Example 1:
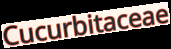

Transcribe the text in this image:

Cucurbitaceae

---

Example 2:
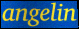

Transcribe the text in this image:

angelin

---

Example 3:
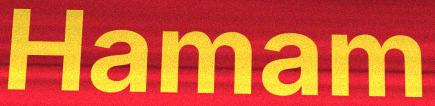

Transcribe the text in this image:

Hamam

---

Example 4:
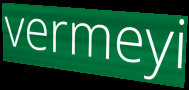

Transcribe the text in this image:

vermeyi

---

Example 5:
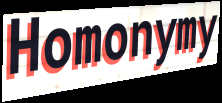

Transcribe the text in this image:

Homonymy